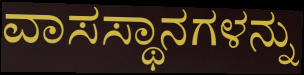
ವಾಸಸ್ಥಾನಗಳನ್ನು